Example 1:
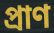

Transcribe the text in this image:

প্ৰাণ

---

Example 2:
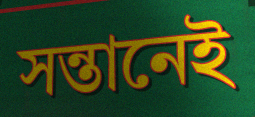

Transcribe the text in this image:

সন্তানেই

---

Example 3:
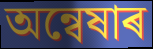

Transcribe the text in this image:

অন্বেষাৰ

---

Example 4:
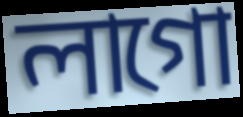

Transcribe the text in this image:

লাগো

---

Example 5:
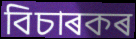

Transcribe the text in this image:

বিচাৰকৰ